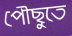
পৌছুতে